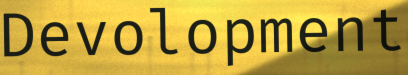
Devolopment